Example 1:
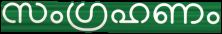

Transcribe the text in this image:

സംഗ്രഹണം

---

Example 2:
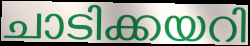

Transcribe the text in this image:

ചാടിക്കയറി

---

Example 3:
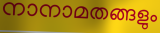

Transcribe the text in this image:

നാനാമതങ്ങളും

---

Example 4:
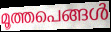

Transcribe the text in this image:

മൂത്തപെങ്ങൾ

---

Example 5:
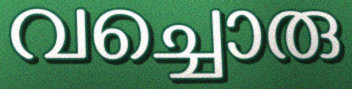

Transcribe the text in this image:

വച്ചൊരു